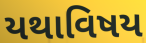
યથાવિષય